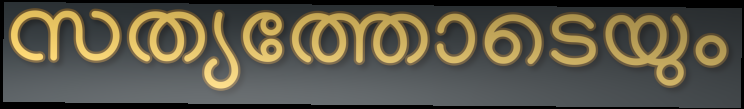
സത്യത്തോടെയും